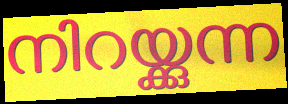
നിറയ്ക്കുന്ന